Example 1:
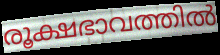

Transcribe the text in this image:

രൂക്ഷഭാവത്തിൽ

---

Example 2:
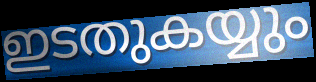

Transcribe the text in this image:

ഇടതുകയ്യും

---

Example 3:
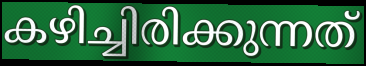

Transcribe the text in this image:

കഴിച്ചിരിക്കുന്നത്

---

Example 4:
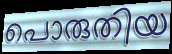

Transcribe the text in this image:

പൊരുതിയ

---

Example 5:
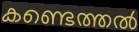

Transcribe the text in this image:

കണ്ടെത്തൽ